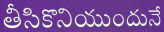
తీసికొనియుందునే